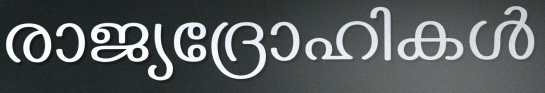
രാജ്യദ്രോഹികൾ